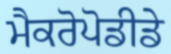
ਮੈਕਰੋਪੋਡੀਡੇ